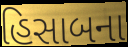
હિસાબના